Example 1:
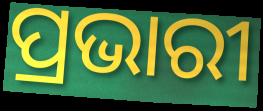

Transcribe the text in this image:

ପ୍ରଭାରୀ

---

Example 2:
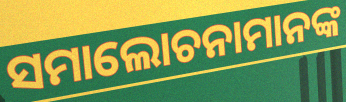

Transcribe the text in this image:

ସମାଲୋଚନାମାନଙ୍କ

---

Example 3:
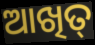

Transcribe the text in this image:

ଆଖିତ୍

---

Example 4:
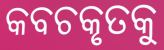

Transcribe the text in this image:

କବଚକୃତକୁ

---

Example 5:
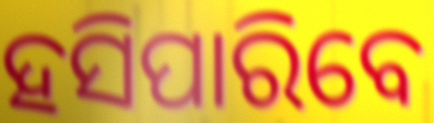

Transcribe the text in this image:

ହସିପାରିବେ